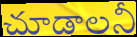
చూడాలనీ